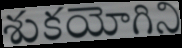
శుకయోగిని